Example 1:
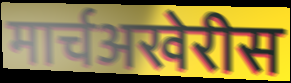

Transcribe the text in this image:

मार्चअखेरीस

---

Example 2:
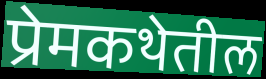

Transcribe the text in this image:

प्रेमकथेतील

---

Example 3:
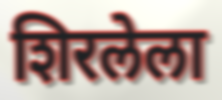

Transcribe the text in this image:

शिरलेला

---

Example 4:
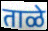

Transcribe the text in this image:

ताळे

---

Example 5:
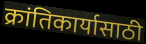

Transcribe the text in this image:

क्रांतिकार्यासाठी